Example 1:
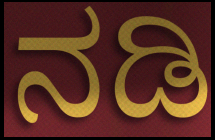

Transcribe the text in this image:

ನಡಿ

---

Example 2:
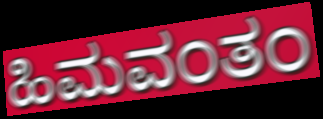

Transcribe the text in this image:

ಹಿಮವಂತಂ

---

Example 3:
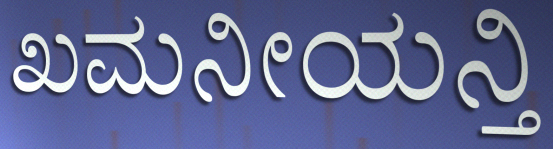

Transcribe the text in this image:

ಖಮನೀಯನ್ತಿ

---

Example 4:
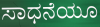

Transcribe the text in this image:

ಸಾಧನೆಯೂ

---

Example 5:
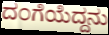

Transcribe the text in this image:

ದಂಗೆಯೆದ್ದನು